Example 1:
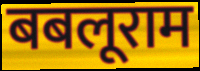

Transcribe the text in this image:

बबलूराम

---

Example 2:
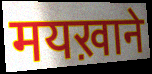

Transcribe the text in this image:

मयख़ाने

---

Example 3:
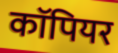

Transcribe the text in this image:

कॉपियर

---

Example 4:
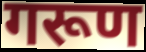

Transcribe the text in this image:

गरूण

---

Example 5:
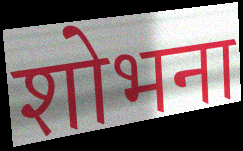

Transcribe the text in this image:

शोभना